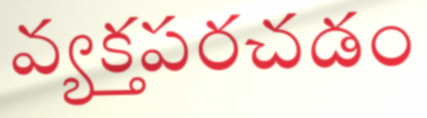
వ్యక్తపరచడం